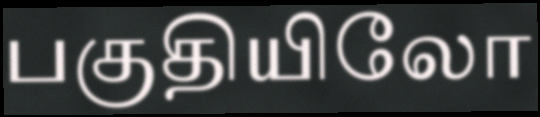
பகுதியிலோ